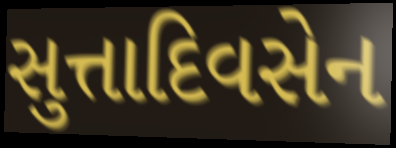
સુત્તાદિવસેન